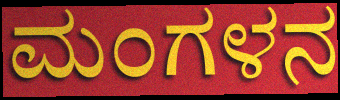
ಮಂಗಳನ